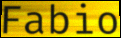
Fabio